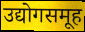
उद्योगसमूह